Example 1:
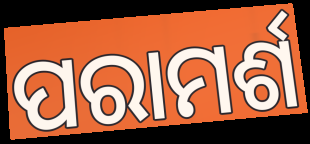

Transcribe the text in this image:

ପରାମର୍ଶ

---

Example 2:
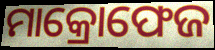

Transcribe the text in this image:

ମାକ୍ରୋଫେଜ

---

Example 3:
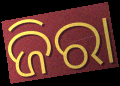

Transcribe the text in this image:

ଜିରା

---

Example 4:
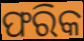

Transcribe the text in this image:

ଫରିକ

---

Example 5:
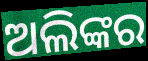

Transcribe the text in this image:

ଅଲିଙ୍କର